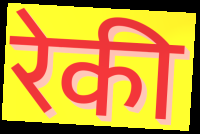
रेकी